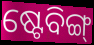
ଷ୍ଟେବିଙ୍ଗ୍